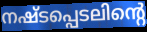
നഷ്ടപ്പെടലിന്റെ